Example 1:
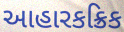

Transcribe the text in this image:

આહારકક્રિક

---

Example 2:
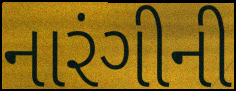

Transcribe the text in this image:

નારંગીની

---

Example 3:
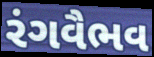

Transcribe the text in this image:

રંગવૈભવ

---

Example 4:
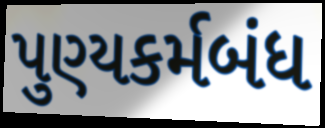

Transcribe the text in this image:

પુણ્યકર્મબંધ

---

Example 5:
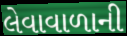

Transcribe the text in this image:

લેવાવાળાની